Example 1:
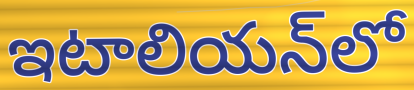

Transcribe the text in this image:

ఇటాలియన్‌లో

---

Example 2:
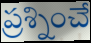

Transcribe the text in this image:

ప్రశ్నించే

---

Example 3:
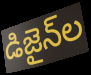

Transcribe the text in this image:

డిజైన్‌ల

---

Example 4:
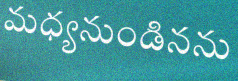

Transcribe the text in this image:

మధ్యనుండినను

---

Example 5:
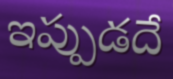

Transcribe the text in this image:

ఇప్పుడదే